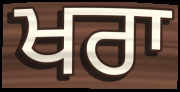
ਖਰਾ